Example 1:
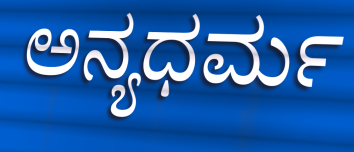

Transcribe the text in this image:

ಅನ್ಯಧರ್ಮ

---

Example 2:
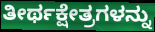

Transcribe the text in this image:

ತೀರ್ಥಕ್ಷೇತ್ರಗಳನ್ನು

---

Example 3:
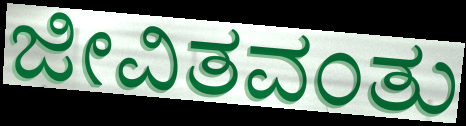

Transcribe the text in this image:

ಜೀವಿತವಂತು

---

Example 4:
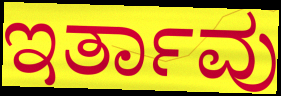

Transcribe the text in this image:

ಇರ್ತಾವು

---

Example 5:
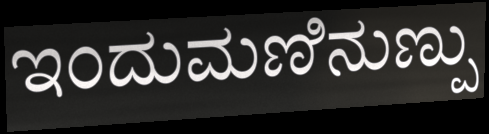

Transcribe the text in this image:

ಇಂದುಮಣಿನುಣ್ಪು